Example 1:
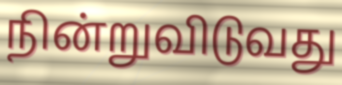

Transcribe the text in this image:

நின்றுவிடுவது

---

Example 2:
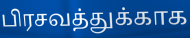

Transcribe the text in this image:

பிரசவத்துக்காக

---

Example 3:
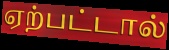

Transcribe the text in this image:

ஏற்பட்டால்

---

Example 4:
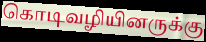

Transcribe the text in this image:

கொடிவழியினருக்கு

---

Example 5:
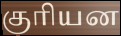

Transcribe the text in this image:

குரியன